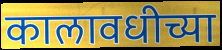
कालावधीच्या